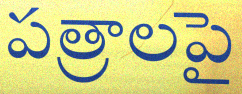
పత్రాలపై